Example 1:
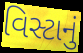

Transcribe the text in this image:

વિસ્ટાનું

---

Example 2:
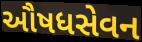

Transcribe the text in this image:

ઔષધસેવન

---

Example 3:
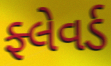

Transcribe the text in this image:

ફ્લેવર્ડ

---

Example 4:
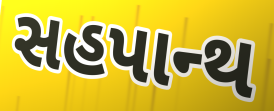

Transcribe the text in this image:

સહપાન્થ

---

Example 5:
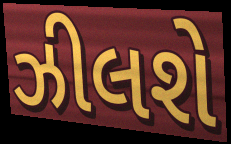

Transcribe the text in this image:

ઝીલશે